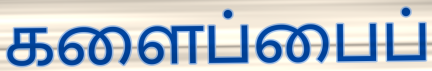
களைப்பைப்